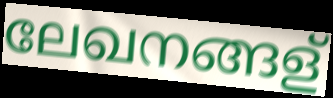
ലേഖനങ്ങള്